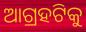
ଆଗ୍ରହଟିକୁ